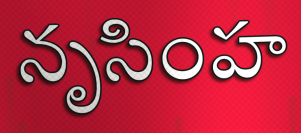
నృసింహ